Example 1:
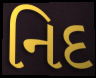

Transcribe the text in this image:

નિદ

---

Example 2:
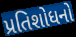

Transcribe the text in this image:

પ્રતિશોધનો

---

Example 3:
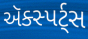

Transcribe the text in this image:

ઍક્સ્પર્ટ્સ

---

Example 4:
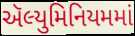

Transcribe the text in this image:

ઍલ્યુમિનિયમમાં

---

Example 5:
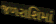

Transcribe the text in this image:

જળરાશિમાં